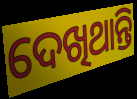
ଦେଖିଥାନ୍ତି